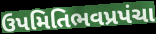
ઉપમિતિભવપ્રપંચા